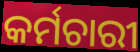
କର୍ମଚାରୀ